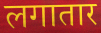
लगातार